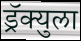
ड्रॅक्युला